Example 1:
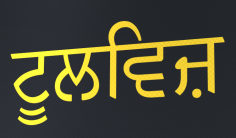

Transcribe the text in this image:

ਟੂਲਵਿਜ਼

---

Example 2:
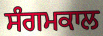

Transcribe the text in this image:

ਸੰਗਮਕਾਲ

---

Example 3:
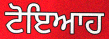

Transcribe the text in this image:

ਟੋਇਆਹ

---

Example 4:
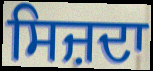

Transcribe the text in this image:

ਸਿਜ਼ਦਾ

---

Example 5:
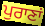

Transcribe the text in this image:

ਪੁਰਾਣਾਂ